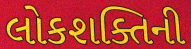
લોકશક્તિની